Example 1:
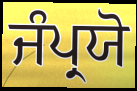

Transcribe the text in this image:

ਜੰਪ੍ਰਯੋ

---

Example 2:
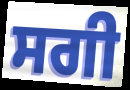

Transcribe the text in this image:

ਸਗੀ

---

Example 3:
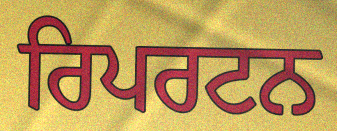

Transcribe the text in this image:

ਰਿਪਰਟਨ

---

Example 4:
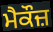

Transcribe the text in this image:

ਮੈਕੌਜ਼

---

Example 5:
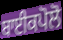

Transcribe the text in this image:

ਬਾਈਕਪੋਲੋ